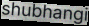
shubhangi